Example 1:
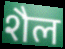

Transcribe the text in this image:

शैल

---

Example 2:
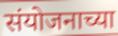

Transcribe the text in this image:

संयोजनाच्या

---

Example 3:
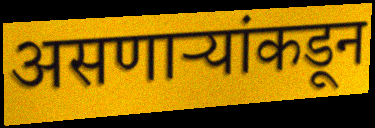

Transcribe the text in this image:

असणाऱ्यांकडून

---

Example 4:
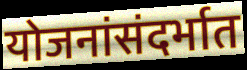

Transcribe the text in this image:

योजनांसंदर्भात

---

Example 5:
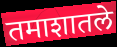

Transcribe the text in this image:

तमाशातले